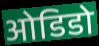
ओडिडो